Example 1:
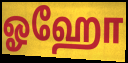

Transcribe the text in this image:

ஓஹோ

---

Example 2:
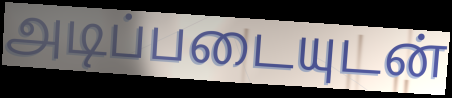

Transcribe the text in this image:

அடிப்படையுடன்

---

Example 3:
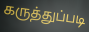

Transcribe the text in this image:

கருத்துப்படி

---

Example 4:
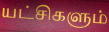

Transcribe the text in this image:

யட்சிகளும்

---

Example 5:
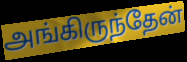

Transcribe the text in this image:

அங்கிருந்தேன்